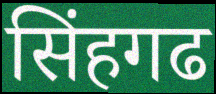
सिंहगढ